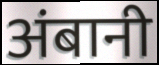
अंबानी